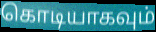
கொடியாகவும்